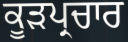
ਕੂੜਪ੍ਰਚਾਰ